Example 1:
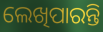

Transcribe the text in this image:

ଲେଖିପାରନ୍ତି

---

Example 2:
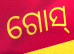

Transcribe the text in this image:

ଗୋସ୍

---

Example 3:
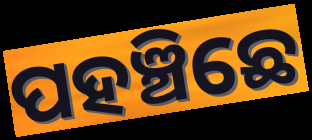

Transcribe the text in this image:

ପହଞ୍ଚିଛେ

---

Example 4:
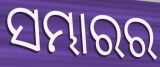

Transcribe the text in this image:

ସମ୍ଭାରର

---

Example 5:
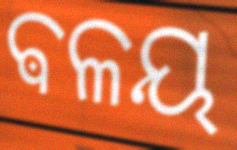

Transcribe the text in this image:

ଵଳୟ